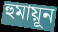
হুমায়ূন